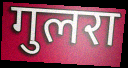
गुलरा